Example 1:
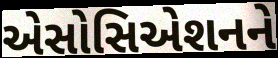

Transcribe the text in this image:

એસોસિએશનને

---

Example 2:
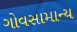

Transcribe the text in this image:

ગોવસામાન્ય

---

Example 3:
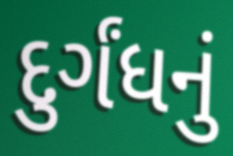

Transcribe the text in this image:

દુર્ગંધનું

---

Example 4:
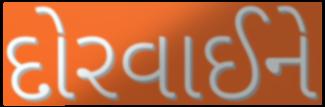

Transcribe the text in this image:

દોરવાઈને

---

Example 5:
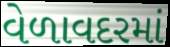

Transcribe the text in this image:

વેળાવદરમાં